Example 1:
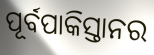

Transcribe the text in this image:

ପୂର୍ବପାକିସ୍ତାନର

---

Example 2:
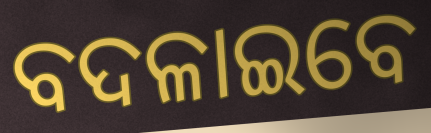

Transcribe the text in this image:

ବଦଳାଇବେ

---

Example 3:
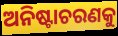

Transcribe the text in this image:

ଅନିଷ୍ଟାଚରଣକୁ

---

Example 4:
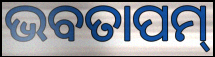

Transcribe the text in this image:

ଭବତାପମ୍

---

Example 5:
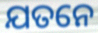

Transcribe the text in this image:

ଯତନେ